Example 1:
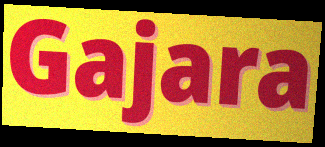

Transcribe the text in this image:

Gajara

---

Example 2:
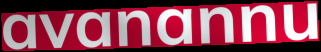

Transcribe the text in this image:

avanannu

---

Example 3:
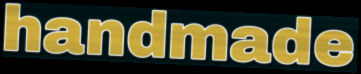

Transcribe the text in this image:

handmade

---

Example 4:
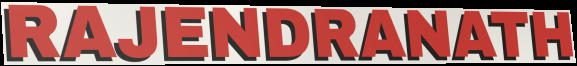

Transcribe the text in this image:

RAJENDRANATH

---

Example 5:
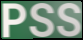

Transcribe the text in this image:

PSS